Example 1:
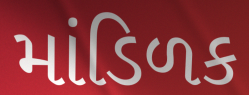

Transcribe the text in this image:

માંડિળક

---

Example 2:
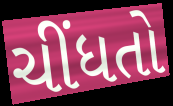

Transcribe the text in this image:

ચીંધતો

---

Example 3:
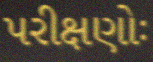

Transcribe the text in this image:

પરીક્ષણોઃ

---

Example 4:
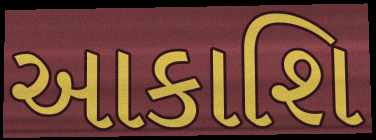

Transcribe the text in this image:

આકાશિ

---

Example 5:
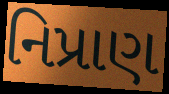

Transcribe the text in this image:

નિપ્રાણ